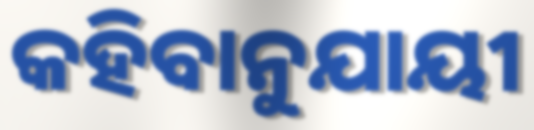
କହିବାନୁଯାୟୀ